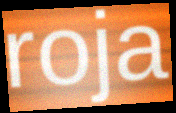
roja